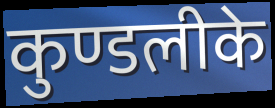
कुण्डलीके